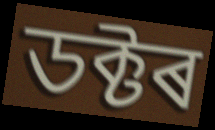
ডক্টৰ